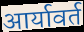
आर्यावर्त